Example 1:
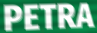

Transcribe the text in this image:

PETRA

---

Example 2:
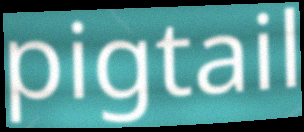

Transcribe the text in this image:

pigtail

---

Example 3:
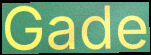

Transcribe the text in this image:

Gade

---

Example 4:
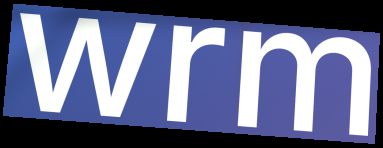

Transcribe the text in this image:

wrm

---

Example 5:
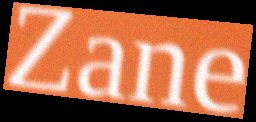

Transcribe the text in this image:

Zane